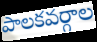
పాలకవర్గాల